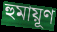
হুমায়ূণ